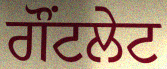
ਗੌਂਟਲੇਟ